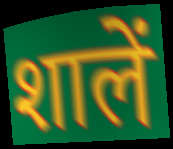
शालें